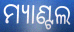
ମ୍ୟାଣ୍ଟଲ